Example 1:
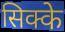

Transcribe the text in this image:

सिक्के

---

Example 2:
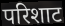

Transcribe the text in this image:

परिशाट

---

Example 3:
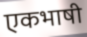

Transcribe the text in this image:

एकभाषी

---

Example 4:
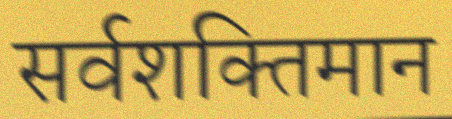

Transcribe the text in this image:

सर्वशक्‍तिमान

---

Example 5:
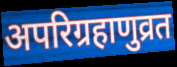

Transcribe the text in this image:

अपरिग्रहाणुव्रत